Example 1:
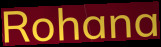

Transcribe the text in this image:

Rohana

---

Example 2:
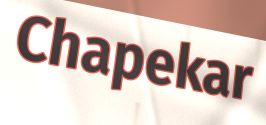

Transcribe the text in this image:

Chapekar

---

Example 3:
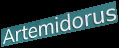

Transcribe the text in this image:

Artemidorus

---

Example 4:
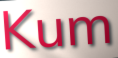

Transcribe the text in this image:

Kum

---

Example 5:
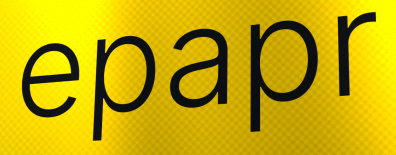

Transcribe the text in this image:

epapr